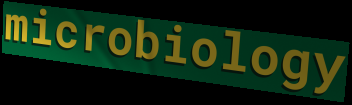
microbiology